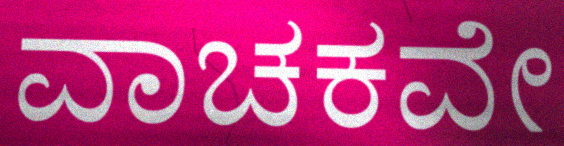
ವಾಚಕವೇ